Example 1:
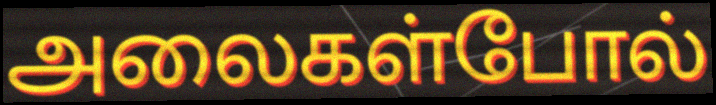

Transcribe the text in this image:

அலைகள்போல்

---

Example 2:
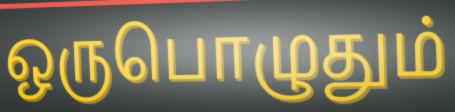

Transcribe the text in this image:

ஒருபொழுதும்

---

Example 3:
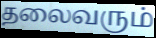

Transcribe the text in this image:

தலைவரும்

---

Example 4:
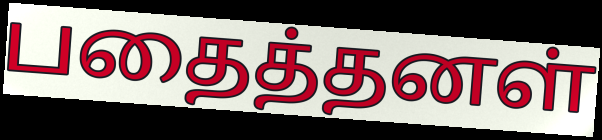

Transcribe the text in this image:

பதைத்தனள்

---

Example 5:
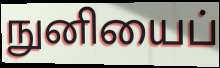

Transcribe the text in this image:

நுனியைப்